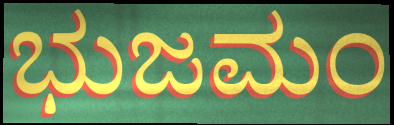
ಭುಜಮಂ